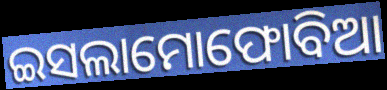
ଇସଲାମୋଫୋବିଆ